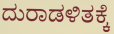
ದುರಾಡಳಿತಕ್ಕೆ